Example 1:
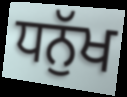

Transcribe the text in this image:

ਧਨੁੱਖ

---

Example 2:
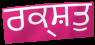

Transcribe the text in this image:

ਰਕ੍ਸ਼ਤੁ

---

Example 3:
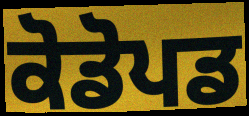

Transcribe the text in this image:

ਕੋਡੋਪਡ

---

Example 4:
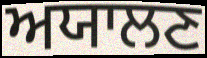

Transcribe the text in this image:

ਅਯਾਲਣ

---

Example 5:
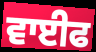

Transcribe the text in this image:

ਵਾਈਫ